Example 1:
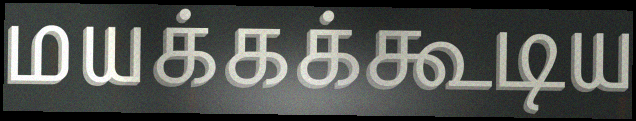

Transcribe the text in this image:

மயக்கக்கூடிய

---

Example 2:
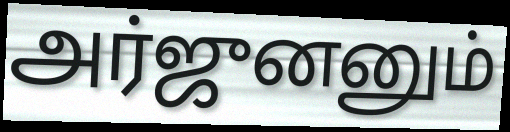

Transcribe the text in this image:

அர்ஜுனனும்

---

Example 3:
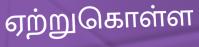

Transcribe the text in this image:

ஏற்றுகொள்ள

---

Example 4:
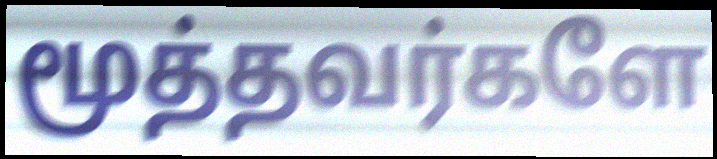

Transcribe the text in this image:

மூத்தவர்களே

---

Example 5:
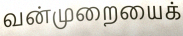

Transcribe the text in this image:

வன்முறையைக்